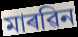
মাৰৱিন